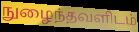
நுழைந்தவளிடம்